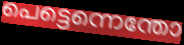
പെട്ടെന്നെന്തോ